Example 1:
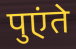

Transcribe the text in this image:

पुएंते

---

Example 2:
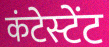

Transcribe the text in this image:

कंटेस्‍टेंट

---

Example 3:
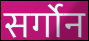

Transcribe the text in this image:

सर्गोन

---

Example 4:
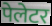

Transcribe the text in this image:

पेलेटर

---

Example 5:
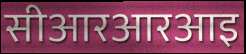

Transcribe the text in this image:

सीआरआरआइ